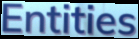
Entities